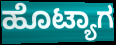
ಹೊಟ್ಯಾಗ